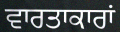
ਵਾਰਤਾਕਾਰਾਂ